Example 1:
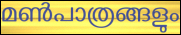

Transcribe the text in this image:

മൺപാത്രങ്ങളും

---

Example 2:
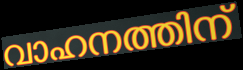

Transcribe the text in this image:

വാഹനത്തിന്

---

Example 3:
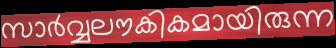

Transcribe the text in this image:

സാർവ്വലൗകികമായിരുന്ന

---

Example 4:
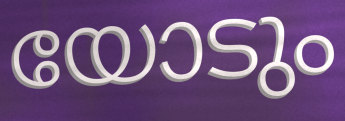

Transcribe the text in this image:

യോടും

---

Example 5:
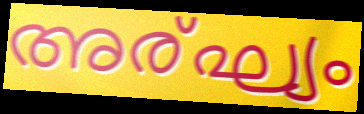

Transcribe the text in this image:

അര്ഘ്യം